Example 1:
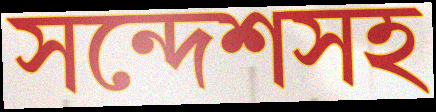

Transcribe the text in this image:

সন্দেশসহ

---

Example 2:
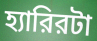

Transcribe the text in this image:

হ্যারিরটা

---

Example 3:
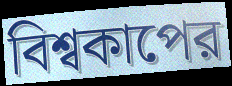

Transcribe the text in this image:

বিশ্বকাপের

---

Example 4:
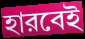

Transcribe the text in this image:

হারবেই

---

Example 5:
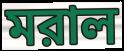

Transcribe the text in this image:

মরাল